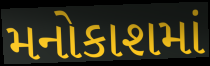
મનોકાશમાં